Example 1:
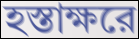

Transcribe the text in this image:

হস্তাক্ষরে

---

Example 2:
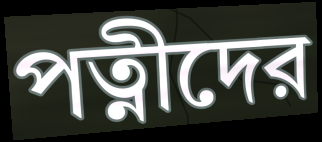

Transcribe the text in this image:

পত্নীদের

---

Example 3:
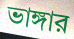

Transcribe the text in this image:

ভাঙ্গার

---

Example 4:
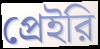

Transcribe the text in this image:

প্রেইরি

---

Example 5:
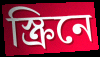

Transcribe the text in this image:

স্ক্রিনে